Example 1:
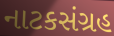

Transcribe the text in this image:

નાટકસંગ્રહ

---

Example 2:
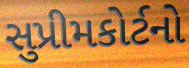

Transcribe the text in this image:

સુપ્રીમકોર્ટનો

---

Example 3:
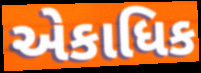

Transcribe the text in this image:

એકાધિક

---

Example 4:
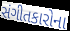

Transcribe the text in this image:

સંગીતકારોના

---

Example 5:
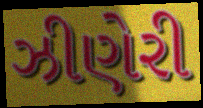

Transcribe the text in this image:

ઝીણેરી